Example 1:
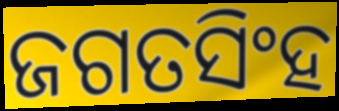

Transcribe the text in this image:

ଜଗତସିଂହ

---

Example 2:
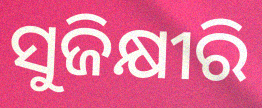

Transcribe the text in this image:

ସୁଜିକ୍ଷୀରି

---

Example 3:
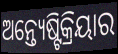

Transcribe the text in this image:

ଅନ୍ତ୍ୟେଷ୍ଟିକ୍ରିୟାର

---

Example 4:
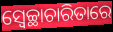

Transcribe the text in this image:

ସ୍ୱେଚ୍ଛାଚାରିତାରେ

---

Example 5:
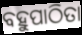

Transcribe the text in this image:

ବହୁପାଠିତା